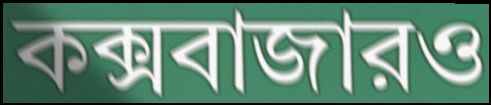
কক্সবাজারও